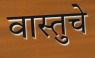
वास्तुचे